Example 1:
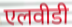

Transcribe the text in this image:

एलवीडी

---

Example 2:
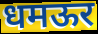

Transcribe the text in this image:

धमऊर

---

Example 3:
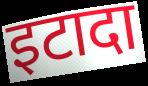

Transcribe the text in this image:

इटादा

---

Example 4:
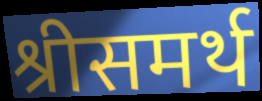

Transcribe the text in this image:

श्रीसमर्थ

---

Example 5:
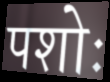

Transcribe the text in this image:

पशोः